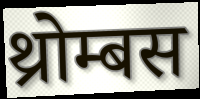
थ्रोम्बस